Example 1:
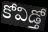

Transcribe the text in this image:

కోవిడ్తో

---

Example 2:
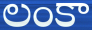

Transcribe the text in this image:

లంకా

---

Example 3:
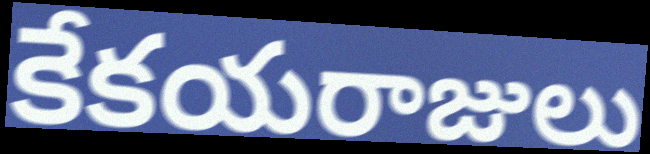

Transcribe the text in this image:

కేకయరాజులు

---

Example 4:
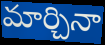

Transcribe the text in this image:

మార్చినా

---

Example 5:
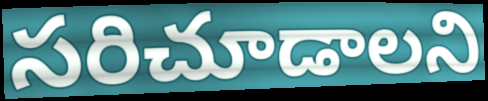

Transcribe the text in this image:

సరిచూడాలని